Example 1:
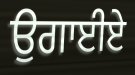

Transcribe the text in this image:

ਉਗਾਈਏ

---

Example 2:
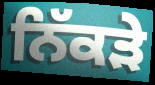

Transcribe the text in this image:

ਨਿੱਕੜੇ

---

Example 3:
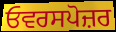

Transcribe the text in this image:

ਓਵਰਸਪੋਜ਼ਰ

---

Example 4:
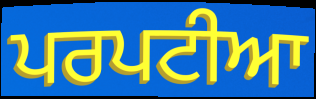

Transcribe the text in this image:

ਪਰਪਟੀਆ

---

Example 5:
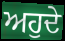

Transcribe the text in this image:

ਅਹੁਦੇ